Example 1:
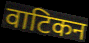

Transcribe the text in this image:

वाटिकन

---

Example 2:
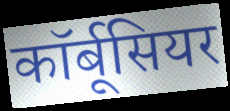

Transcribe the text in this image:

कॉर्बूसियर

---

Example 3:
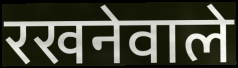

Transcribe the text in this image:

रखनेवाले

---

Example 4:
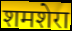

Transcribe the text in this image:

शमशेरा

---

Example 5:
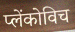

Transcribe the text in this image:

प्लेंकोविच